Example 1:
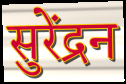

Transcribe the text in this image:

सुरेंद्रन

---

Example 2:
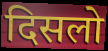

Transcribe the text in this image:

दिसलो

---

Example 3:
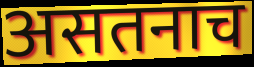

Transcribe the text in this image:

असतनाच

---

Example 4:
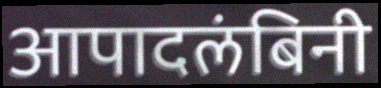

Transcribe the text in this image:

आपादलंबिनी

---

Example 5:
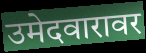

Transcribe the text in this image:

उमेदवारावर